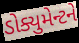
ડોક્યુમેન્ટને